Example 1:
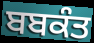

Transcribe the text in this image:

ਬਬਕੰਤ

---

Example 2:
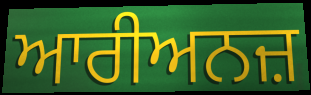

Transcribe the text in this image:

ਆਰੀਅਨਜ਼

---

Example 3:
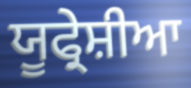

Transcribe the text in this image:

ਯੂਫ੍ਰੇਸ਼ੀਆ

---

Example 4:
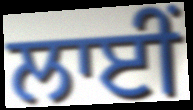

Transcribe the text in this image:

ਲਾਈਂ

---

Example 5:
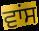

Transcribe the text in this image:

ਵਾਂਸ